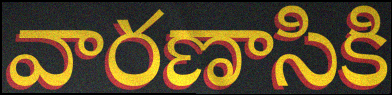
వారణాసికి